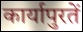
कार्यापुरतें